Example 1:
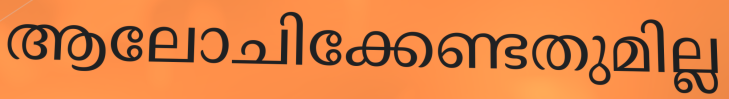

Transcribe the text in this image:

ആലോചിക്കേണ്ടതുമില്ല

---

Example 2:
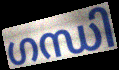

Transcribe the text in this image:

ഗന്ധി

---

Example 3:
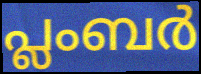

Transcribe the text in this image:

പ്ലംബർ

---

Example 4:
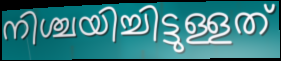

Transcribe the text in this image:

നിശ്ചയിച്ചിട്ടുള്ളത്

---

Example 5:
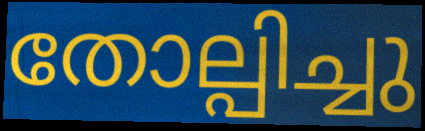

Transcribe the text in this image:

തോല്പിച്ചു